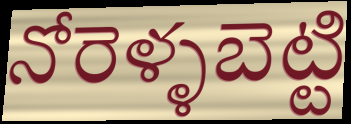
నోరెళ్ళబెట్టి